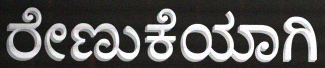
ರೇಣುಕೆಯಾಗಿ